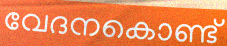
വേദനകൊണ്ട്